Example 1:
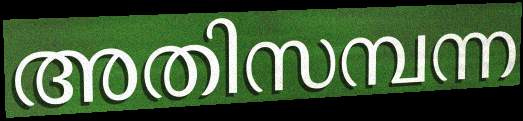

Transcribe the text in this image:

അതിസമ്പന്ന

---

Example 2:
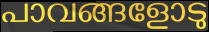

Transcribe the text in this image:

പാവങ്ങളോടു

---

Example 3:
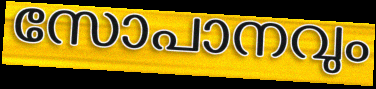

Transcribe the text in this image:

സോപാനവും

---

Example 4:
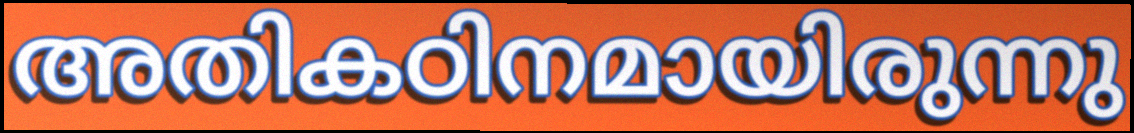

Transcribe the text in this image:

അതികഠിനമായിരുന്നു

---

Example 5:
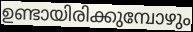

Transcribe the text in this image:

ഉണ്ടായിരിക്കുമ്പോഴും